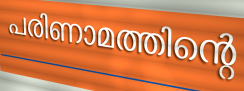
പരിണാമത്തിന്റെ